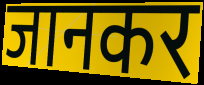
जानकर